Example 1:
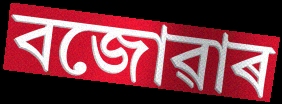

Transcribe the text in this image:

বজোৱাৰ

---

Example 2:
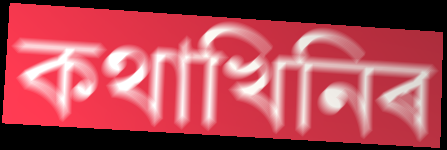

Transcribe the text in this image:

কথাখিনিৰ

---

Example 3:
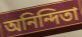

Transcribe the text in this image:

অনিন্দিতা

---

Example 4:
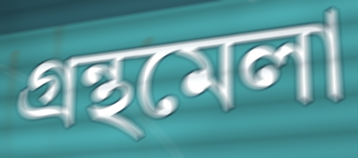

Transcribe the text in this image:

গ্ৰন্থমেলা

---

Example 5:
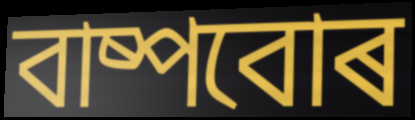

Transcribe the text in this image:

বাষ্পবোৰ